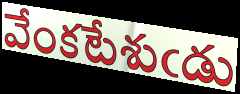
వేంకటేశుఁడు